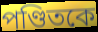
পণ্ডিতকে